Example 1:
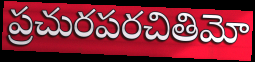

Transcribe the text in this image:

ప్రచురపరచితిమో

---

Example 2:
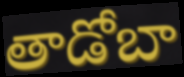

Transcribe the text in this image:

తాడోబా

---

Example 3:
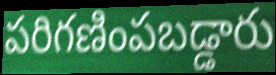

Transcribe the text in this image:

పరిగణింపబడ్డారు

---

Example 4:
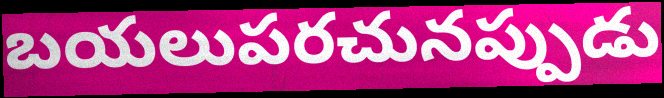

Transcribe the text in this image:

బయలుపరచునప్పుడు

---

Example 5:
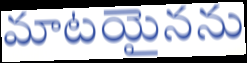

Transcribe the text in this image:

మాటయైనను